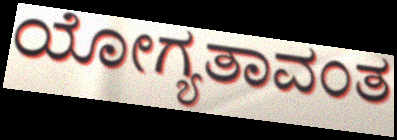
ಯೋಗ್ಯತಾವಂತ